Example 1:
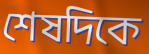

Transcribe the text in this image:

শেষদিকে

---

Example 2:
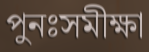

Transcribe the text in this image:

পুনঃসমীক্ষা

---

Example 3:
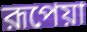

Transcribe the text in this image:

রূপেয়া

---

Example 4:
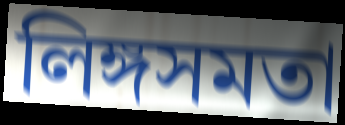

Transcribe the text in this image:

লিঙ্গসমতা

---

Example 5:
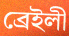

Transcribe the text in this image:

ব্রেইলী